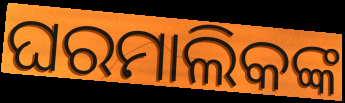
ଘରମାଲିକଙ୍କ